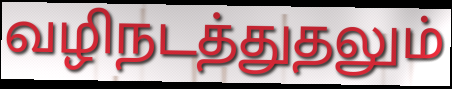
வழிநடத்துதலும்